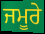
ਜਮੂਰੇ